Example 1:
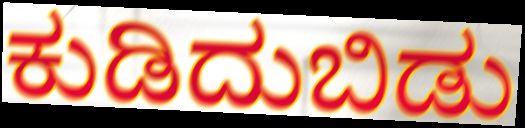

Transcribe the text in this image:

ಕುಡಿದುಬಿಡು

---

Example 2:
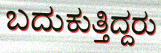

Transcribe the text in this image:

ಬದುಕುತ್ತಿದ್ದರು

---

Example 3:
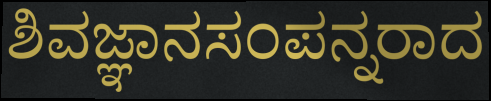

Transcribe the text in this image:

ಶಿವಜ್ಞಾನಸಂಪನ್ನರಾದ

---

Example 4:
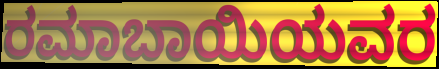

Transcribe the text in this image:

ರಮಾಬಾಯಿಯವರ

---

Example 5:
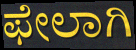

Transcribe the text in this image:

ಫೇಲಾಗಿ